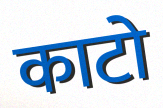
काटो